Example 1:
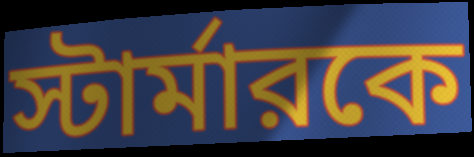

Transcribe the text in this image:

স্টার্মারকে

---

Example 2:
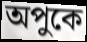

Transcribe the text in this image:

অপুকে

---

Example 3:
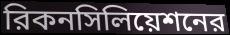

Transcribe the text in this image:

রিকনসিলিয়েশনের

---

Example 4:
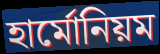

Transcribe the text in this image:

হার্মোনিয়ম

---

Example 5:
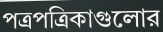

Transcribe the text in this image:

পত্রপত্রিকাগুলোর